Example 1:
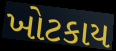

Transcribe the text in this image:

ખોટકાય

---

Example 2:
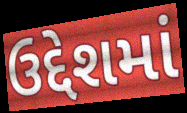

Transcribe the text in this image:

ઉદ્દેશમાં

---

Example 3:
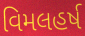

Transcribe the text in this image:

વિમલહર્ષ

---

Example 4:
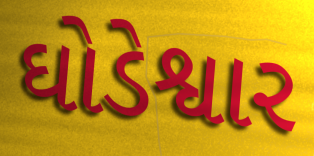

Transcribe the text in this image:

ઘોડેશ્વાર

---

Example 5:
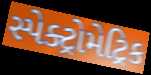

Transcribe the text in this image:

સ્પેક્ટ્રોમેટ્રિક